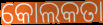
କୋଲକତା